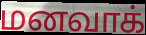
மனவாக்